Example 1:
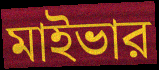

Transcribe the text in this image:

মাইভার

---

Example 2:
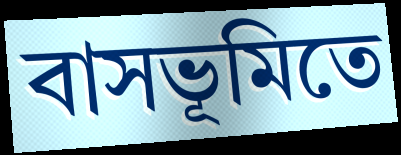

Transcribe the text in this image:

বাসভূমিতে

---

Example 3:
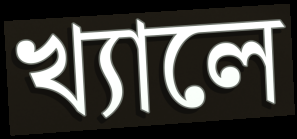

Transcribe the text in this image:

খ্যালে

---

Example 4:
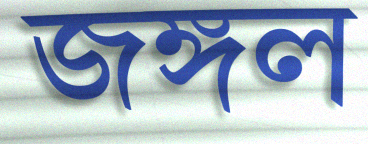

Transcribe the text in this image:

জঙ্গল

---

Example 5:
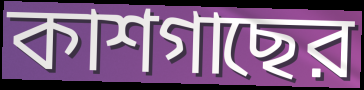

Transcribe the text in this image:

কাশগাছের